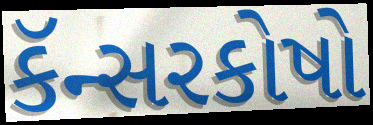
કૅન્સરકોષો